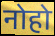
नोहो